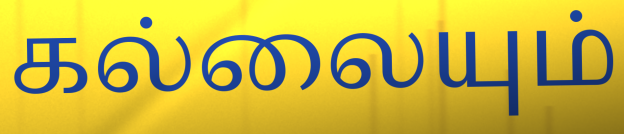
கல்லையும்